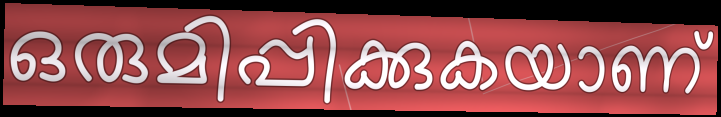
ഒരുമിപ്പിക്കുകയാണ്